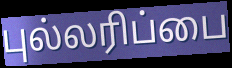
புல்லரிப்பை